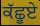
ਕੱਛੂਏ